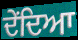
ਦੇਂਦਿਆ